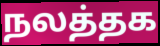
நலத்தக